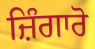
ਜ਼ਿੰਗਾਰੋ